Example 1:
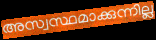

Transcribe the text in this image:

അസ്വസ്ഥമാക്കുന്നില്ല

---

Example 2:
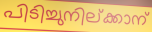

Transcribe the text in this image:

പിടിച്ചുനില്ക്കാന്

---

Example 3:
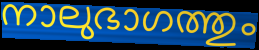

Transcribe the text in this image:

നാലുഭാഗത്തും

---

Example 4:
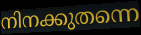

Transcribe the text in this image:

നിനക്കുതന്നെ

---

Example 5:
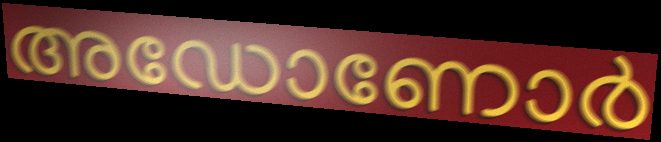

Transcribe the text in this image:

അഡോണോർ